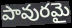
పావురమై